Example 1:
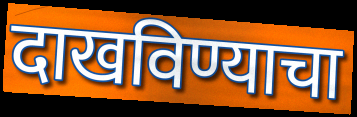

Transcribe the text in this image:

दाखविण्याचा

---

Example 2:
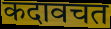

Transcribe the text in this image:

कदावचत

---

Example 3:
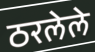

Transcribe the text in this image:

ठरलेले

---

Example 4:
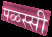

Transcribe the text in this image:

पळस्सी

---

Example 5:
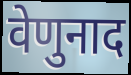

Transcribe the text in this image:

वेणुनाद